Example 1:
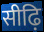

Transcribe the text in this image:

सीढ़ि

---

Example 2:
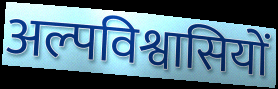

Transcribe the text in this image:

अल्पविश्वासियों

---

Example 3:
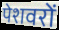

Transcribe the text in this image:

पेशवरों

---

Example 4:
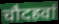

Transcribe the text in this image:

चौदहवां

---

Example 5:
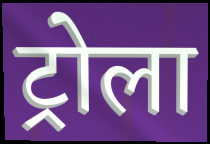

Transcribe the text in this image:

ट्रोला